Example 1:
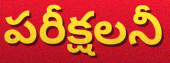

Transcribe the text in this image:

పరీక్షలనీ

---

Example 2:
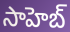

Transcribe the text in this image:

సాహెబ్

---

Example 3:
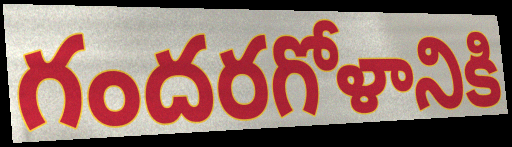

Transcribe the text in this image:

గందరగోళానికి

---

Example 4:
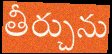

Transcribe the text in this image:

తీర్చును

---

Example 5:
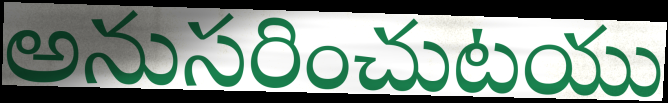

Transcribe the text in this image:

అనుసరించుటయు